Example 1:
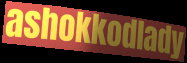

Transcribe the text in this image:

ashokkodlady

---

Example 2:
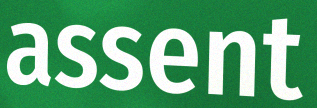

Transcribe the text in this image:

assent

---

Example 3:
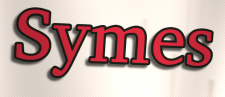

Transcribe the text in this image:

Symes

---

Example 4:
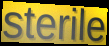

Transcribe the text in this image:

sterile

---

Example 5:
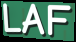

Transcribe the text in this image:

LAF